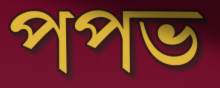
পপভ